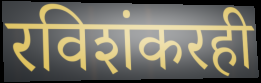
रविशंकरही